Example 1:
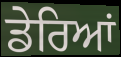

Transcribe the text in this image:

ਡੇਰਿਆਂ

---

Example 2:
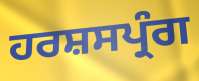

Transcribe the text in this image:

ਹਰਸ਼ਸਪ੍ਰੰਗ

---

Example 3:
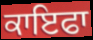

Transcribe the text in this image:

ਕਾਇਫਾ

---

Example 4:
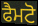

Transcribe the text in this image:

ਫੈਮਟੋ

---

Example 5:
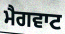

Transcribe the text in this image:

ਮੈਗਵਾਟ